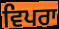
ਵਿਪਰਾ